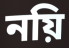
নয়ি